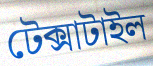
টেক্সাটাইল